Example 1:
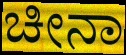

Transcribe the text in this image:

ಚೀನಾ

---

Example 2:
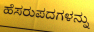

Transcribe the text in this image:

ಹೆಸರುಪದಗಳನ್ನು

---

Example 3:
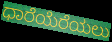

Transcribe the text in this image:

ಧಾರೆಯೆರೆಯಲು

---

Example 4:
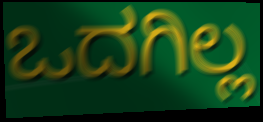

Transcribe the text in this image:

ಒದಗಿಲ್ಲ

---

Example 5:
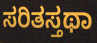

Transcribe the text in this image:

ಸರಿತಸ್ತಥಾ